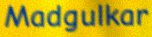
Madgulkar